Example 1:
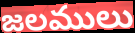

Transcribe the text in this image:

జలములు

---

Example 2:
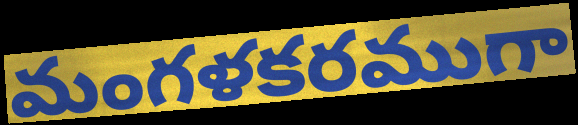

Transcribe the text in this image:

మంగళకరముగా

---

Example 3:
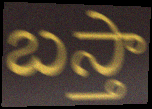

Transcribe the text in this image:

బస్తా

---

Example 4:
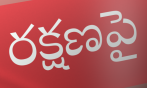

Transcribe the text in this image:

రక్షణపై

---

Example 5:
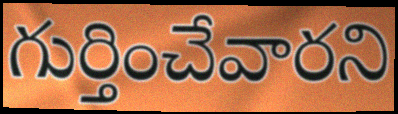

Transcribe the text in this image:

గుర్తించేవారని